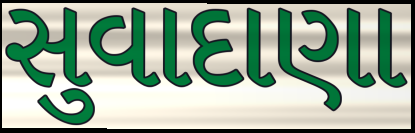
સુવાદાણા